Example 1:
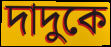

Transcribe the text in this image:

দাদুকে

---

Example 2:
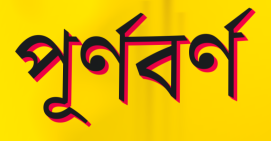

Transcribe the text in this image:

পূর্ণবর্ণ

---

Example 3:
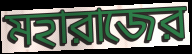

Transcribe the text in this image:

মহারাজের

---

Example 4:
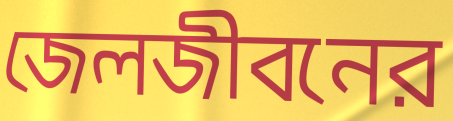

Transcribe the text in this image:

জেলজীবনের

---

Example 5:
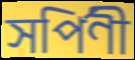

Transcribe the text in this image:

সর্পিণী